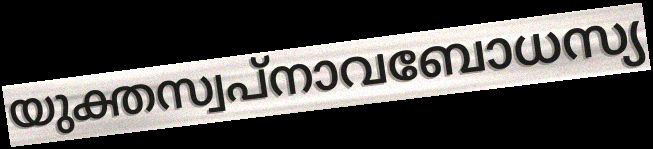
യുക്തസ്വപ്നാവബോധസ്യ